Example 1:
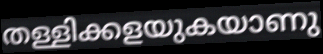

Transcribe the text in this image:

തള്ളിക്കളയുകയാണു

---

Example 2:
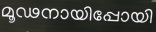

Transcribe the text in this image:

മൂഢനായിപ്പോയി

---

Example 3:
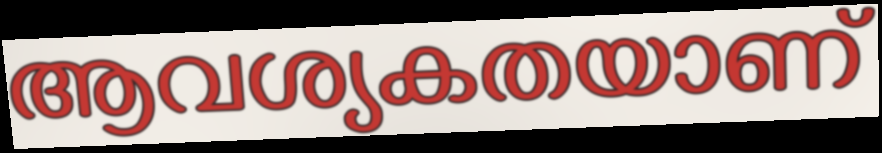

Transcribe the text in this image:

ആവശ്യകതയാണ്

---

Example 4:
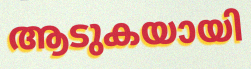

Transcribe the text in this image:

ആടുകയായി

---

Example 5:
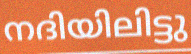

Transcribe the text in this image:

നദിയിലിട്ടു